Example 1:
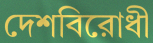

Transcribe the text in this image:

দেশবিরোধী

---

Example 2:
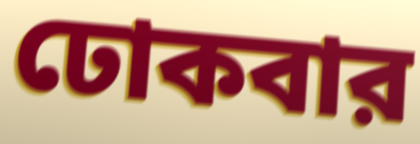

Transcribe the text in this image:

ঢোকবার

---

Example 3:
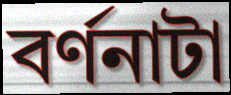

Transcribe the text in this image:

বর্ণনাটা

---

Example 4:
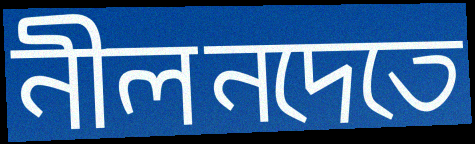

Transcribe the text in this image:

নীলনদেতে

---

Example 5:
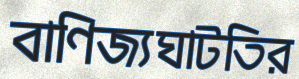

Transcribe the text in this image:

বাণিজ্যঘাটতির